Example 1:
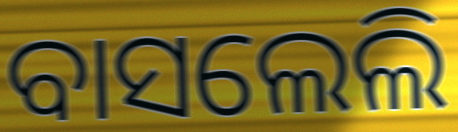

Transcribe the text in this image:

ବାସଲେଲି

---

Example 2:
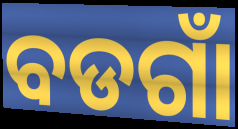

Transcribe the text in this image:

ବଡଗାଁ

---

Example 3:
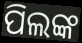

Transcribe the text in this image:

ପିଲଙ୍କ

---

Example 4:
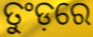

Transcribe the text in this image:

ତୁଂଡ଼ରେ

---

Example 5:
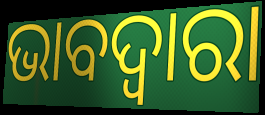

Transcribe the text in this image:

ଭାବଦ୍ଵାରା